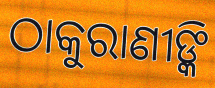
ଠାକୁରାଣୀଙ୍କି